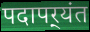
पदापर्यंत